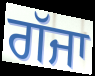
ਗੱਜਾ